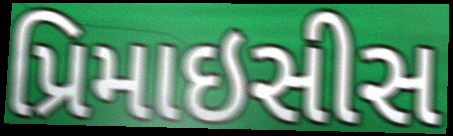
પ્રિમાઇસીસ